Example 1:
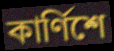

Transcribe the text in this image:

কার্ণিশে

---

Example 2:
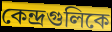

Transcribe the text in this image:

কেন্দ্রগুলিকে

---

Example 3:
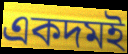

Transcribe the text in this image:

একদমই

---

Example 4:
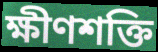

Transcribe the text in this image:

ক্ষীণশক্তি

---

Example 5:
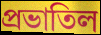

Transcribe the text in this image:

প্রভাতিল